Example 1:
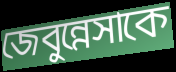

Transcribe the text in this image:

জেবুন্নেসাকে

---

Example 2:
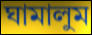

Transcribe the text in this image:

ঘামালুম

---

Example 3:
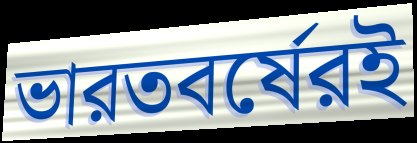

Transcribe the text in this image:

ভারতবর্ষেরই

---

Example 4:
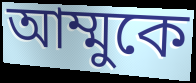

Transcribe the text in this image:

আম্মুকে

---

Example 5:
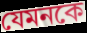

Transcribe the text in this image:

যেমনকে